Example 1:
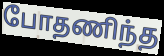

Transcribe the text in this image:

போதணிந்த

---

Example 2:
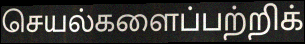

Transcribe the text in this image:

செயல்களைப்பற்றிக்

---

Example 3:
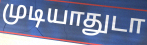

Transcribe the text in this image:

முடியாதுடா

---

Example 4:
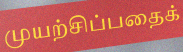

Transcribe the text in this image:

முயற்சிப்பதைக்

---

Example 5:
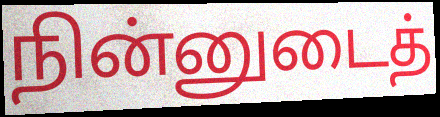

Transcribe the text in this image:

நின்னுடைத்